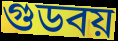
গুডবয়